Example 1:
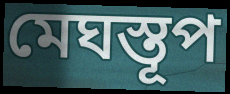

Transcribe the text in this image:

মেঘস্তূপ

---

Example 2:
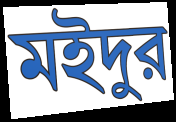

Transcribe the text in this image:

মইদুর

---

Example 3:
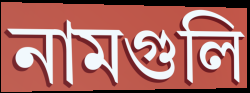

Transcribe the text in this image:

নামগুলি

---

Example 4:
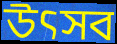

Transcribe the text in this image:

উত্‍সব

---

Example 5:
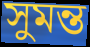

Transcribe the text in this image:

সুমন্ত